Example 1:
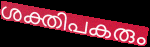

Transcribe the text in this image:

ശക്തിപകരും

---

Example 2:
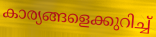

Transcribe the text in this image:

കാര്യങ്ങളെക്കുറിച്ച്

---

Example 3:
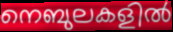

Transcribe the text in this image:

നെബുലകളിൽ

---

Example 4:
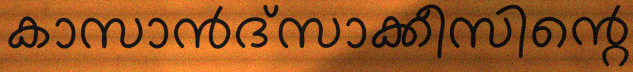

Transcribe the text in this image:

കാസാൻദ്സാക്കീസിന്റെ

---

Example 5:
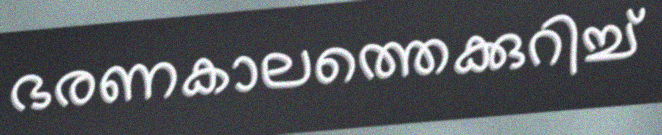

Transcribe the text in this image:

ഭരണകാലത്തെക്കുറിച്ച്